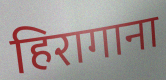
हिरागाना